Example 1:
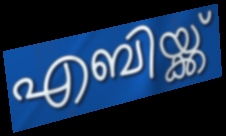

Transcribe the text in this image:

എബിയ്ക്ക്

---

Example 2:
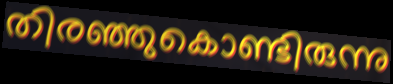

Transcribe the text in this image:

തിരഞ്ഞുകൊണ്ടിരുന്നു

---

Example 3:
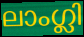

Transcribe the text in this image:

ലാംഗ്ലി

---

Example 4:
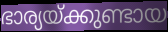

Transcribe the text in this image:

ഭാര്യയ്ക്കുണ്ടായ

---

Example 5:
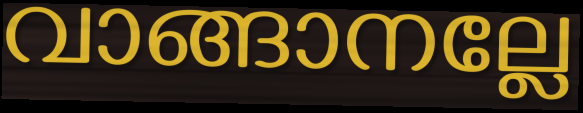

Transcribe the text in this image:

വാങ്ങാനല്ലേ